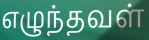
எழுந்தவள்